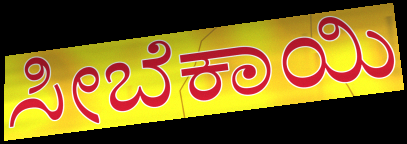
ಸೀಬೆಕಾಯಿ